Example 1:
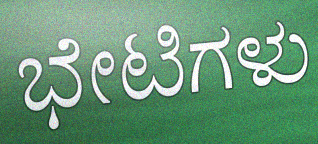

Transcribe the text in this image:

ಭೇಟಿಗಳು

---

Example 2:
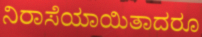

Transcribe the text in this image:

ನಿರಾಸೆಯಾಯಿತಾದರೂ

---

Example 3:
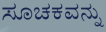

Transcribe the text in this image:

ಸೂಚಕವನ್ನು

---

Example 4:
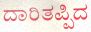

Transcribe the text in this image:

ದಾರಿತಪ್ಪಿದ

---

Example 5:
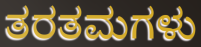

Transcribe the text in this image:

ತರತಮಗಳು